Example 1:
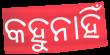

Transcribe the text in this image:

କହୁନାହିଁ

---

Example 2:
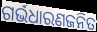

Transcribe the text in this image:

ଗର୍ଭଧାରଣଜନିତ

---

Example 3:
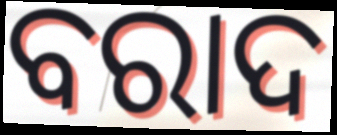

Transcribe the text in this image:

ବରାଦ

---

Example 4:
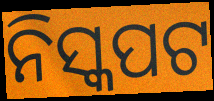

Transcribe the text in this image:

ନିସ୍କପଟ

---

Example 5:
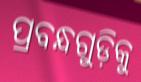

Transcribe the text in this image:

ପ୍ରବନ୍ଧଗୁଡ଼ିକୁ